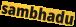
sambhadu